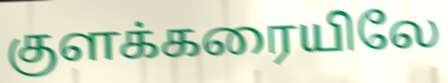
குளக்கரையிலே